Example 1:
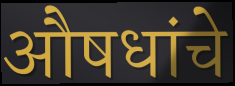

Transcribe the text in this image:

औषधांचे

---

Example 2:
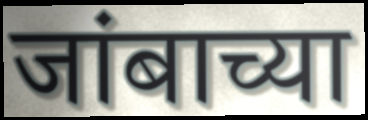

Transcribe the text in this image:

जांबाच्या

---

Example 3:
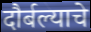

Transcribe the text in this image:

दौर्बल्याचे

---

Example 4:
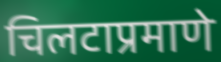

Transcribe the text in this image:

चिलटाप्रमाणे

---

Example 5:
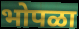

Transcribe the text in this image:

भोपळा